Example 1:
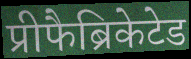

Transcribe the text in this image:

प्रीफैब्रिकेटेड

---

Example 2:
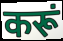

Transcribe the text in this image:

करूं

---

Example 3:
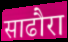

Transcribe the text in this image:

साढौरा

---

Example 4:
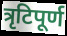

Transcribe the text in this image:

त्रृटिपूर्ण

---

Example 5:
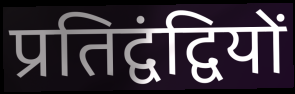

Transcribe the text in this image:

प्रतिद्वंद्वियों